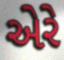
એરે